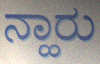
ನ್ಹಾರು